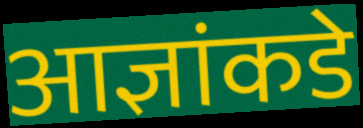
आज्ञांकडे